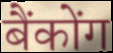
बैंकोंग